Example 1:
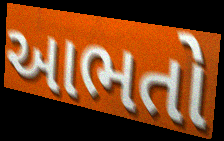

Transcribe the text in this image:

આભતો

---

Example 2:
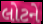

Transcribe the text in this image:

લોટને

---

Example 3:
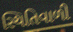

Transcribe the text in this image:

સ્થિતિવાળી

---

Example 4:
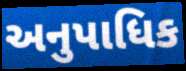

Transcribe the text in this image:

અનુપાધિક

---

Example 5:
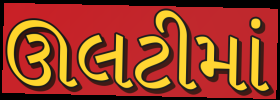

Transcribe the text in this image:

ઊલટીમાં